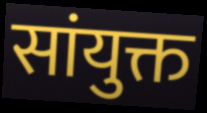
सांयुक्त